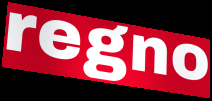
regno